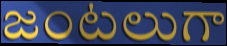
జంటలుగా